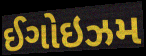
ઈગોઇઝમ